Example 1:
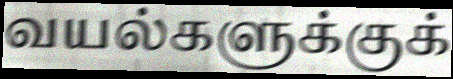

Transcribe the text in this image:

வயல்களுக்குக்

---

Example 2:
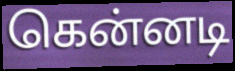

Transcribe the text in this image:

கென்னடி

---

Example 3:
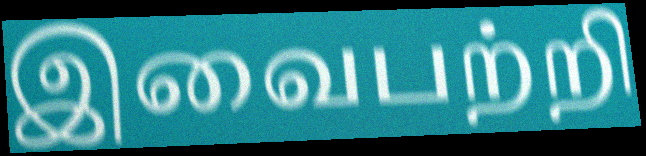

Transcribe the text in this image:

இவைபற்றி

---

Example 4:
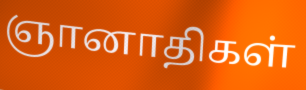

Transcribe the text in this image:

ஞானாதிகள்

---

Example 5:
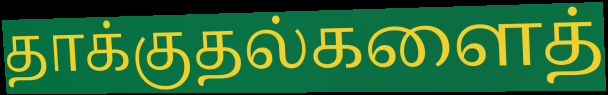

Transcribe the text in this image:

தாக்குதல்களைத்